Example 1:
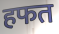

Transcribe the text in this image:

हफत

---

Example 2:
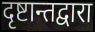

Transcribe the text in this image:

दृष्टान्तद्वारा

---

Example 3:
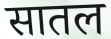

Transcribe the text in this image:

सातल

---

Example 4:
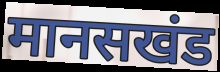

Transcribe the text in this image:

मानसखंड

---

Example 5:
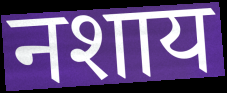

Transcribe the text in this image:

नशाय